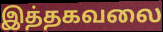
இத்தகவலை